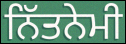
ਨਿੱਤਨੇਮੀ